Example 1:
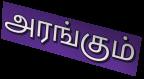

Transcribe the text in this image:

அரங்கும்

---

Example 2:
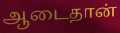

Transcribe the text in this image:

ஆடைதான்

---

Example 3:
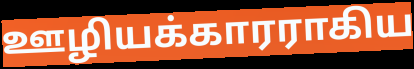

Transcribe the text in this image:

ஊழியக்காரராகிய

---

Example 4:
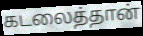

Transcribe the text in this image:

கடலைத்தான்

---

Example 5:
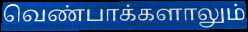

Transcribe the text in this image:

வெண்பாக்களாலும்